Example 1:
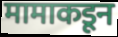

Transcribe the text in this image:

मामाकडून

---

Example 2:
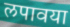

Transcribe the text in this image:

लपावया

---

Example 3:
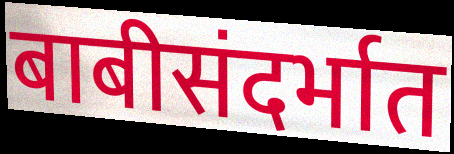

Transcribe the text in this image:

बाबीसंदर्भात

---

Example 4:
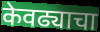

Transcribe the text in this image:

केवढ्याचा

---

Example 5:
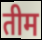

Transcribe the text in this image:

तीम